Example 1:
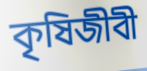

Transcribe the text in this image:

কৃষিজীবী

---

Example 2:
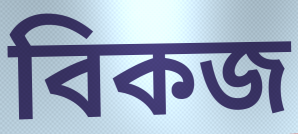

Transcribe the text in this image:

বিকজ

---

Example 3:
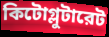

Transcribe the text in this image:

কিটোগ্লুটারেট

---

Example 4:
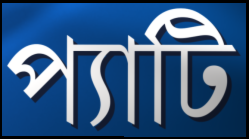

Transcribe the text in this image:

প্যাটি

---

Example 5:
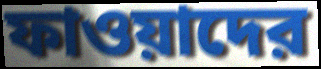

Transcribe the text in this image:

ফাওয়াদের